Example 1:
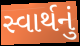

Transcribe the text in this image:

સ્વાર્થનું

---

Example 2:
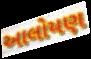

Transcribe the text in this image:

આલોયણ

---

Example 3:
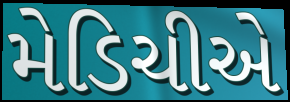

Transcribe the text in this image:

મેડિચીએ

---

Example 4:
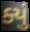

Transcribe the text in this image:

ક્યું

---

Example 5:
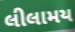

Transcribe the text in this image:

લીલામય